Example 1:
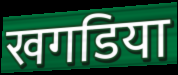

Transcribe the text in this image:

खगडिया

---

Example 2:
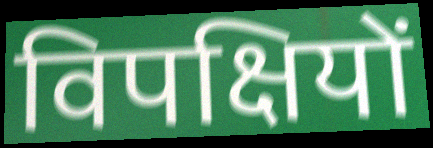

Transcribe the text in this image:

विपक्षियों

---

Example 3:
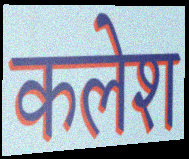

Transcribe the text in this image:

कलेश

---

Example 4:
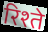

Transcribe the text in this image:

रिश्ते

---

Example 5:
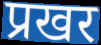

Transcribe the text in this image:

प्रखर